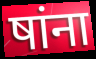
षांना